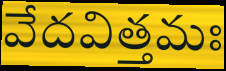
వేదవిత్తమః